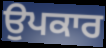
ਉਪਕਾਰ